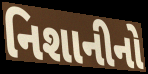
નિશાનીનો